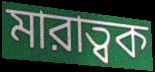
মারাত্বক